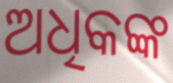
ଅଧିକଙ୍କ